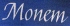
Monem